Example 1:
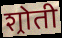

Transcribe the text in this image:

श्रोती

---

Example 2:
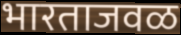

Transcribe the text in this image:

भारताजवळ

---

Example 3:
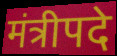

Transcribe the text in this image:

मंत्रीपदे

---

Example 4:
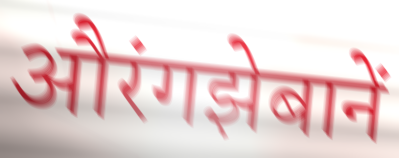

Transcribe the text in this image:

औरंगझेबानें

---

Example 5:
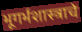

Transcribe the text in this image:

भूगर्भशास्त्राचे